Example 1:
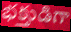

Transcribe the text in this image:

భక్తుడిగా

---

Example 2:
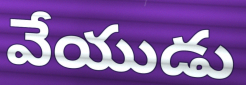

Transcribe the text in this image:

వేయుడు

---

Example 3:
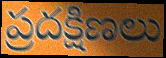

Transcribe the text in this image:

ప్రదక్షిణలు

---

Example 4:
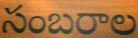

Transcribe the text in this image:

సంబరాల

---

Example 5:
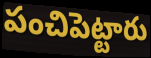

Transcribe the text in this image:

పంచిపెట్టారు